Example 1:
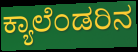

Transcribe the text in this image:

ಕ್ಯಾಲೆಂಡರಿನ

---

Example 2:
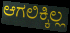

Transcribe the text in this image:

ಆಗಲಿಕ್ಕಿಲ್ಲ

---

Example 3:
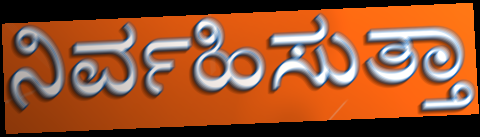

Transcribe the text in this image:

ನಿರ್ವಹಿಸುತ್ತಾ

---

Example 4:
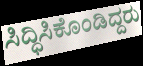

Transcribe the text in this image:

ಸಿದ್ಧಿಸಿಕೊಂಡಿದ್ದರು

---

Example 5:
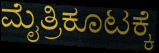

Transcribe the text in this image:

ಮೈತ್ರಿಕೂಟಕ್ಕೆ